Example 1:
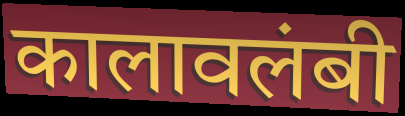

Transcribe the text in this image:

कालावलंबी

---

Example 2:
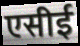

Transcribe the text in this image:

एसीई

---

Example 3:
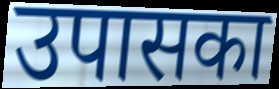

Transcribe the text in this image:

उपासका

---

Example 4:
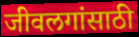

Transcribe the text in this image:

जीवलगांसाठी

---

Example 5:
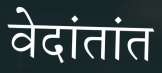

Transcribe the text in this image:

वेदांतांत